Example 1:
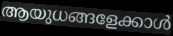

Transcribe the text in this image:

ആയുധങ്ങളേക്കാൾ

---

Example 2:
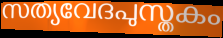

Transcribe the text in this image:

സത്യവേദപുസ്തകം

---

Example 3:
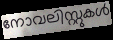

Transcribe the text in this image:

നോവലിസ്റ്റുകൾ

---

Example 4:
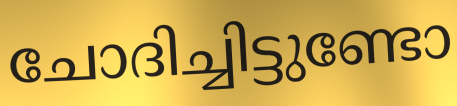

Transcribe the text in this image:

ചോദിച്ചിട്ടുണ്ടോ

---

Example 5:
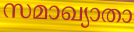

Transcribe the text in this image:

സമാഖ്യാതാ